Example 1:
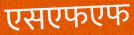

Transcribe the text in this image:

एसएफएफ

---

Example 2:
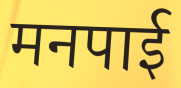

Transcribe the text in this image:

मनपाई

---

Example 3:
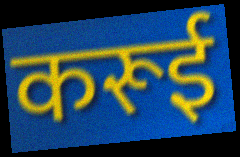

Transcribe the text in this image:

करूई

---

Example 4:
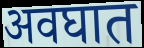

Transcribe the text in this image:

अवघात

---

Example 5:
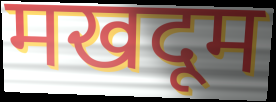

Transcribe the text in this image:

मखदूम